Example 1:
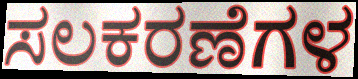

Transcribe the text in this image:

ಸಲಕರಣೆಗಳ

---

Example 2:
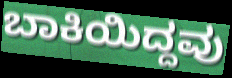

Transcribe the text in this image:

ಬಾಕಿಯಿದ್ದವು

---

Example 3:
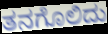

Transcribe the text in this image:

ತನಗೊಲಿದು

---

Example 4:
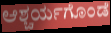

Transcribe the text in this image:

ಆಶ್ಚರ್ಯಗೊಂಡೆ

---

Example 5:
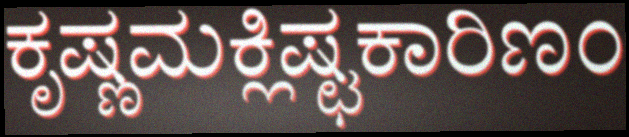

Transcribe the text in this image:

ಕೃಷ್ಣಮಕ್ಲಿಷ್ಟಕಾರಿಣಂ